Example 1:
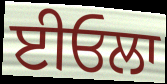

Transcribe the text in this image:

ਈਓਲਾ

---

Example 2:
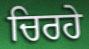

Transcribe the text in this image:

ਚਿਰਹੇ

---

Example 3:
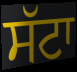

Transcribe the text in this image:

ਸੱਟਾ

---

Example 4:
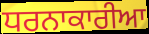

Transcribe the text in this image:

ਧਰਨਾਕਾਰੀਆ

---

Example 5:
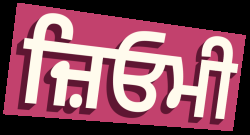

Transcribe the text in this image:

ਜ਼ਿਓਮੀ